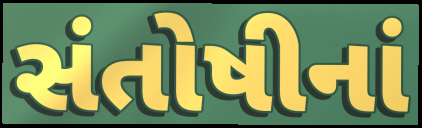
સંતોષીનાં